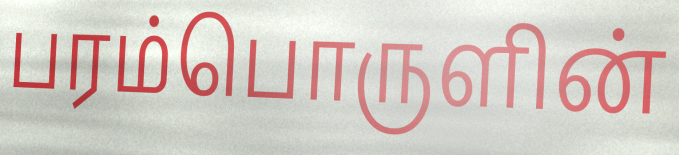
பரம்பொருளின்